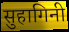
सुहागिनी